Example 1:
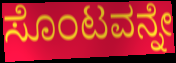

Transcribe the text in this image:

ಸೊಂಟವನ್ನೇ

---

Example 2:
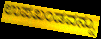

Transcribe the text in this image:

ಉಪಖಂಡವನ್ನು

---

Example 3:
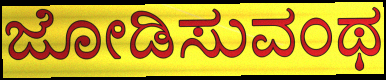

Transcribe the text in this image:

ಜೋಡಿಸುವಂಥ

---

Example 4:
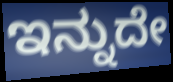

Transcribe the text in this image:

ಇನ್ನುದೇ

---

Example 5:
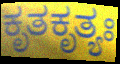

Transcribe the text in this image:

ಕೃತಕೃತ್ಯಃ